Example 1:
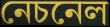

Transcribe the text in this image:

নেচনেল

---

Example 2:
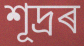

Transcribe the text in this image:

শূদ্ৰৰ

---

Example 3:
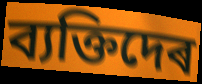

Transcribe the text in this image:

ব্যক্তিদেৰ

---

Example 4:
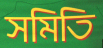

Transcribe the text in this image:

সমিতি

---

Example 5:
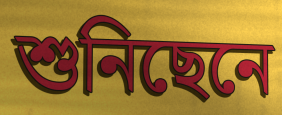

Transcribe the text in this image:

শুনিছেনে